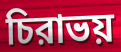
চিরাভয়